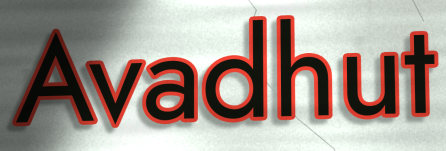
Avadhut